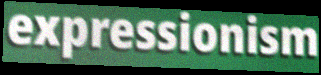
expressionism